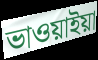
ভাওয়াইয়া